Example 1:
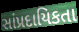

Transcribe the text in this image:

સાંપ્રદાયિકતા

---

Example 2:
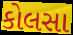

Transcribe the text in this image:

કોલસા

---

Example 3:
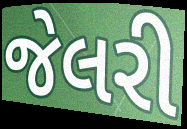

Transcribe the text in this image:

જેલરી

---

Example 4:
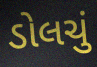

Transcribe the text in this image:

ડોલચું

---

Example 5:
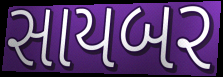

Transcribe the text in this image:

સાયબર